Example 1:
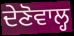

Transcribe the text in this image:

ਦੇਣੋਵਾਲ੍ਹ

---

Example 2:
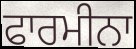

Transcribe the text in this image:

ਫਾਰਮੀਨਾ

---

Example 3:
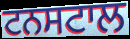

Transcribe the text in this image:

ਟਨਸਟਾਲ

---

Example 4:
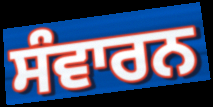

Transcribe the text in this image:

ਸੰਵਾਰਨ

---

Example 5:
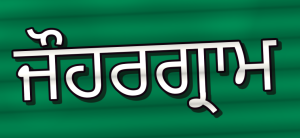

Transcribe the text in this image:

ਜੌਹਰਗ੍ਰਾਮ